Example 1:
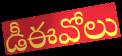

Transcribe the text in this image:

డీఈవోలు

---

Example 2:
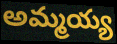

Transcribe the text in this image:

అమ్మయ్య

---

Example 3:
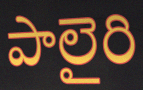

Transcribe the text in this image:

పాలైరి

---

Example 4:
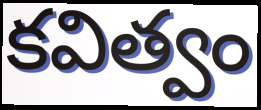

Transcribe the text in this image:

కవిత్వం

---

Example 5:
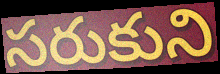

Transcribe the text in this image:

సరుకుని